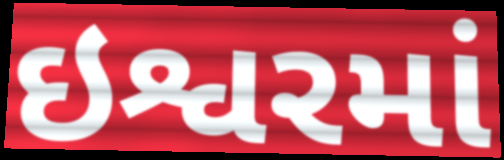
ઇશ્વરમાં